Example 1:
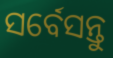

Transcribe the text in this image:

ସର୍ବେସନ୍ତୁ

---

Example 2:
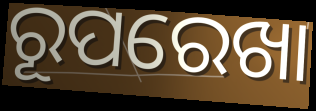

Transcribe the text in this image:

ରୂପରେଖା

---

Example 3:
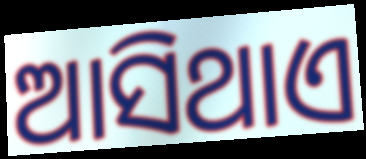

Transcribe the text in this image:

ଆସିଥାଏ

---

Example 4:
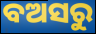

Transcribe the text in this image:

ବଅସରୁ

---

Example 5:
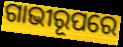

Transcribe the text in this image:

ଗାଭୀରୂପରେ